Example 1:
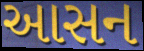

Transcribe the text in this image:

આસન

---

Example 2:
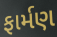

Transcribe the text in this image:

ફાર્મણ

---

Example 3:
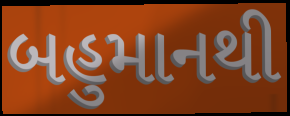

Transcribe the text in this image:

બહુમાનથી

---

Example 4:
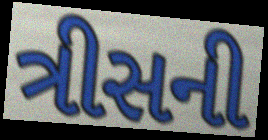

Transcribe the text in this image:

ત્રીસની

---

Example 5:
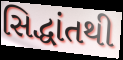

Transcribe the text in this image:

સિદ્ધાંતથી